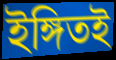
ইঙ্গিতই